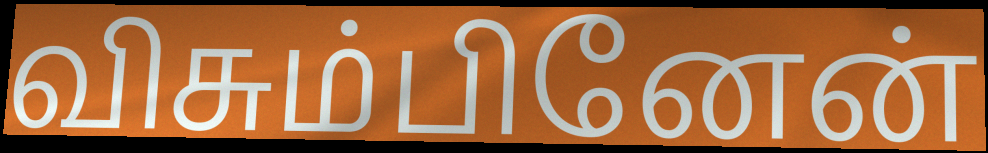
விசும்பினேன்